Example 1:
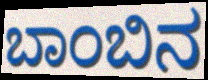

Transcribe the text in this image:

ಬಾಂಬಿನ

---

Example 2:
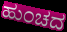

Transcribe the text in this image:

ಹುಂಚದ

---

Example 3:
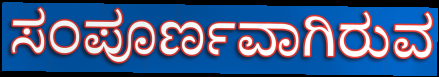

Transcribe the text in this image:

ಸಂಪೂರ್ಣವಾಗಿರುವ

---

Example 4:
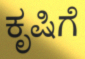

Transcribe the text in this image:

ಕೃಷಿಗೆ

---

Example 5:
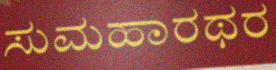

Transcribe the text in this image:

ಸುಮಹಾರಥರ